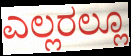
ಎಲ್ಲರಲ್ಲೂ